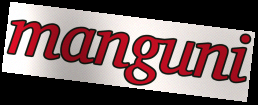
manguni